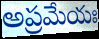
అప్రమేయః